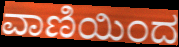
ವಾಣಿಯಿಂದ